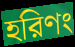
হরিণং